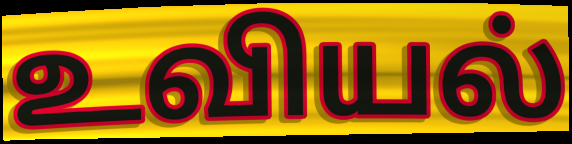
உவியல்